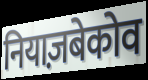
नियाज़बेकोव